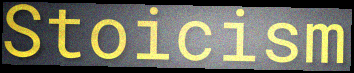
Stoicism